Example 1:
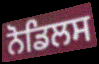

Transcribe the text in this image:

ਨੋਡਿਲਸ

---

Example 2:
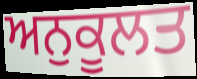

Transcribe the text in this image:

ਅਨੁਕੂਲਤ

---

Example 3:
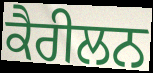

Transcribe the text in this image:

ਕੈਰੀਲਨ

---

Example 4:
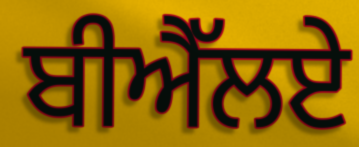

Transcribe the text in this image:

ਬੀਐੱਲਏ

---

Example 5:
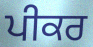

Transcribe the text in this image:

ਪੀਕਰ